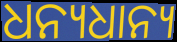
ଧନ୍ୟଧାନ୍ୟ